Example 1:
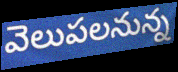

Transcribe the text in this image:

వెలుపలనున్న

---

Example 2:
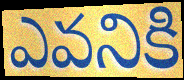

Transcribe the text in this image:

ఎవనికి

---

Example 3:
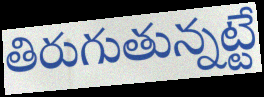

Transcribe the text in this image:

తిరుగుతున్నట్టే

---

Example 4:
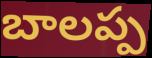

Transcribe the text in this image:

బాలప్ప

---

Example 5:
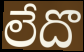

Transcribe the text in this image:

లేదొ